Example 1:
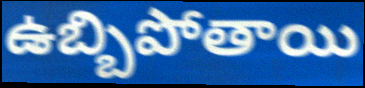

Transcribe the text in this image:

ఉబ్బిపోతాయి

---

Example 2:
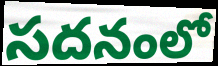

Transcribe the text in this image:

సదనంలో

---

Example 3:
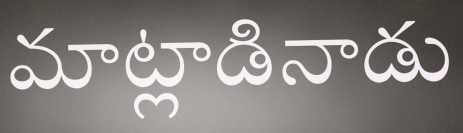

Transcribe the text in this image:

మాట్లాడినాడు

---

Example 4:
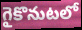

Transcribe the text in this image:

గైకొనుటలో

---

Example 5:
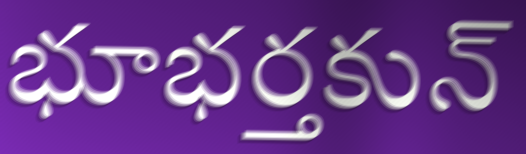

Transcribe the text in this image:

భూభర్తకున్